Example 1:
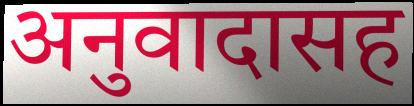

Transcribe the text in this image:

अनुवादासह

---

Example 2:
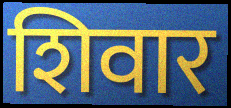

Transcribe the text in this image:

शिवार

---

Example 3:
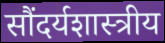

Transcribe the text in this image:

सौंदर्यशास्त्रीय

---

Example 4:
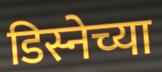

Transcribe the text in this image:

डिस्नेच्या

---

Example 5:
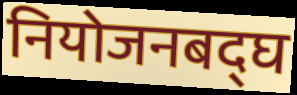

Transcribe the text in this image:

नियोजनबद्घ